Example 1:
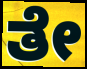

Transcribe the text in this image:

ತೇ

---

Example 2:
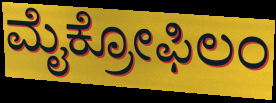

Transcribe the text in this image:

ಮೈಕ್ರೋಫಿಲಂ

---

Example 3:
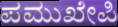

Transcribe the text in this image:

ಪಮುಖೇಪಿ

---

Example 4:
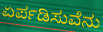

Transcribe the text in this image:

ಏರ್ಪಡಿಸುವೆನು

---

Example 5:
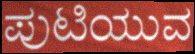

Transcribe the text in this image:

ಪುಟಿಯುವ